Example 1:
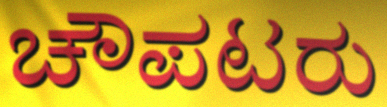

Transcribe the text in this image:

ಚೌಪಟರು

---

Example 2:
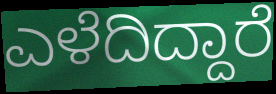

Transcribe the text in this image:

ಎಳೆದಿದ್ದಾರೆ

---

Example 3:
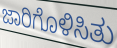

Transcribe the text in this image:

ಜಾರಿಗೊಳಿಸಿತು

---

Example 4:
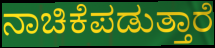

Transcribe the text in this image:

ನಾಚಿಕೆಪಡುತ್ತಾರೆ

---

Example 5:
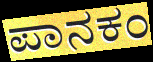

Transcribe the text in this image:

ಪಾನಕಂ